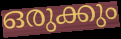
ഒരുക്കും